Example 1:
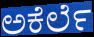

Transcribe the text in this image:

ಅಕೆರ್ಲೆ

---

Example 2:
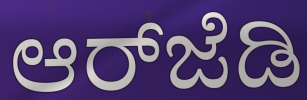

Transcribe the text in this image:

ಆರ್‌ಜೆಡಿ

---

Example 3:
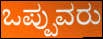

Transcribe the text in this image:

ಒಪ್ಪುವರು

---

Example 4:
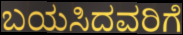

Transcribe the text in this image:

ಬಯಸಿದವರಿಗೆ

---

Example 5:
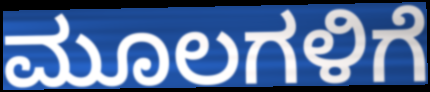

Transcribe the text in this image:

ಮೂಲಗಳಿಗೆ